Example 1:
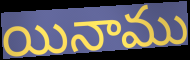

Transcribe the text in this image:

యినాము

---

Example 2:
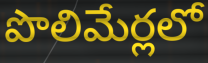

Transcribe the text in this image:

పొలిమేర్లలో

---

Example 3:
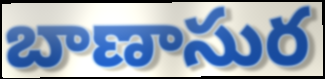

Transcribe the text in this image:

బాణాసుర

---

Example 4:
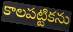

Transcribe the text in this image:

కాలపట్టికను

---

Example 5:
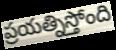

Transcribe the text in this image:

ప్రయత్నిస్తోంది